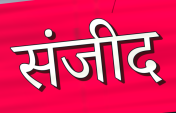
संजीद